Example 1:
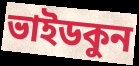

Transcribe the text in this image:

ভাইডকুন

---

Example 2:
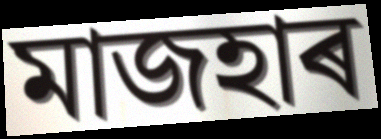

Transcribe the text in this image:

মাজহাৰ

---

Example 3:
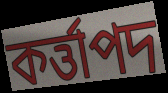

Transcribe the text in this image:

কৰ্ত্তাপদ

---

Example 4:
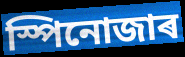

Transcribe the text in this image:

স্পিনোজাৰ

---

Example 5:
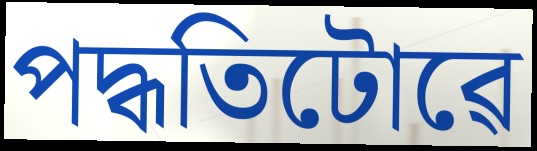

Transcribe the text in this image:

পদ্ধতিটোৱে